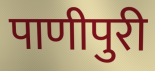
पाणीपुरी